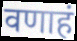
वणाहं